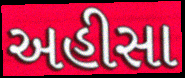
અહીસા